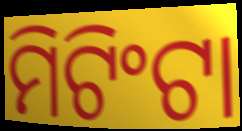
ମିଟିଂଟା